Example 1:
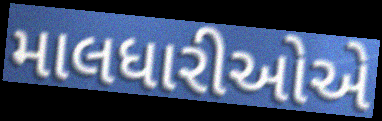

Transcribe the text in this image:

માલધારીઓએ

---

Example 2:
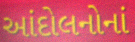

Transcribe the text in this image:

આંદોલનોનાં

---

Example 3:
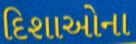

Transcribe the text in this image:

દિશાઓના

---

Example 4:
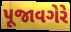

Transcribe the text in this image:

પૂજાવગેરે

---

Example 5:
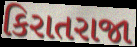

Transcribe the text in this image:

કિરાતરાજા